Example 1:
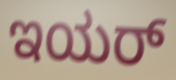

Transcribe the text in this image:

ಇಯರ್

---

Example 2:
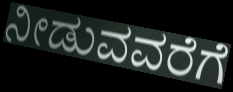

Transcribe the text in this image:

ನೀಡುವವರೆಗೆ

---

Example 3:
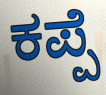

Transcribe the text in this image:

ಕಪ್ಪೆ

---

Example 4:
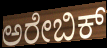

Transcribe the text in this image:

ಅರೇಬಿಕ್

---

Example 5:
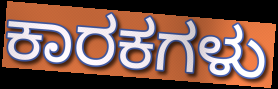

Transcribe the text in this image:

ಕಾರಕಗಳು